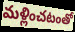
మళ్లించటంతో